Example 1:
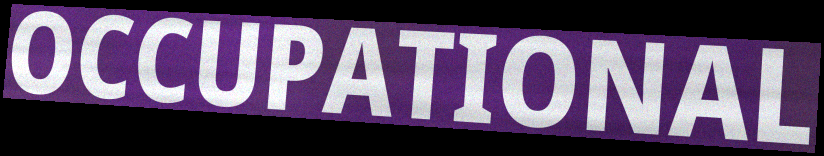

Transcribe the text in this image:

OCCUPATIONAL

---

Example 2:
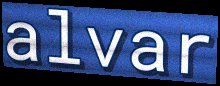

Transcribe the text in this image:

alvar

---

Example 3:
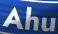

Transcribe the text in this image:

Ahu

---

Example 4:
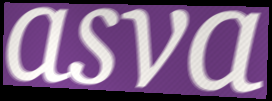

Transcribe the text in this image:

asva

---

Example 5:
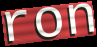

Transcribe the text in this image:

ron